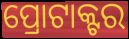
ପ୍ରୋଟାକ୍ଟର